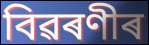
বিৱৰণীৰ